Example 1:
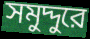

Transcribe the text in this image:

সমুদ্দুরে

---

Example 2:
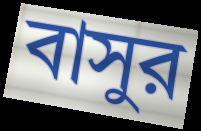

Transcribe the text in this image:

বাসুর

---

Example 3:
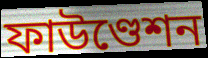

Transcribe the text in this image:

ফাউণ্ডেশন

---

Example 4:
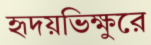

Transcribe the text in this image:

হৃদয়ভিক্ষুরে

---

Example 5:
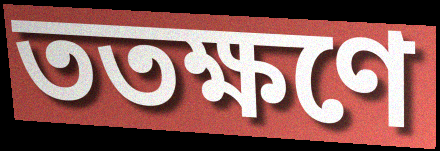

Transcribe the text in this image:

ততক্ষণে